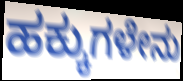
ಹಕ್ಕುಗಳೇನು